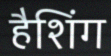
हैशिंग